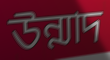
উন্মাদ